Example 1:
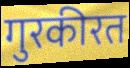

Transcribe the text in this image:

गुरकीरत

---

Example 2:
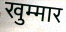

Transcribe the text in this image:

खुम्मार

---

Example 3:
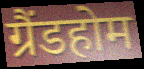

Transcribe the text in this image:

ग्रैंडहोम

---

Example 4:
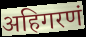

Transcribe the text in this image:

अहिगरणं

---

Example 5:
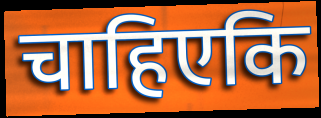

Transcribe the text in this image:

चाहिएकि